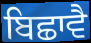
ਬਿਛਾਵੈ